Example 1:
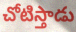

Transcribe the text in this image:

చోటిస్తాడు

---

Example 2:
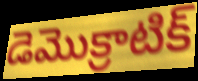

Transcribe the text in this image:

డెమొక్రాటిక్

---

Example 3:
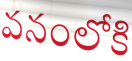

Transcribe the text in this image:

వనంలోకి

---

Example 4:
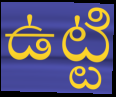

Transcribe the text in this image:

ఉట్టి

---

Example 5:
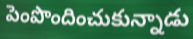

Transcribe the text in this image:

పెంపొందించుకున్నాడు